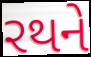
રથને